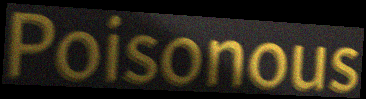
Poisonous